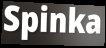
Spinka